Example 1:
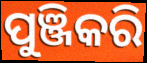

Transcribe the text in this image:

ପୁଞ୍ଜିକରି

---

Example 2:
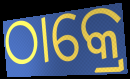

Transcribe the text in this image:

ଠାକ୍ରେ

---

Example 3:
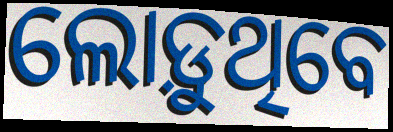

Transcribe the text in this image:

ଲୋଡ଼ୁଥିବେ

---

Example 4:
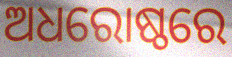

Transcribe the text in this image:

ଅଧରୋଷ୍ଠରେ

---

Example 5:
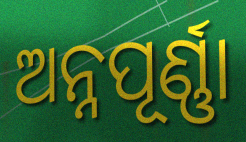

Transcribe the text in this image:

ଅନ୍ନପୂର୍ଣ୍ଣା